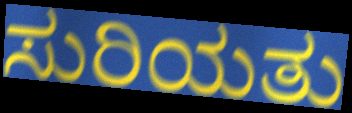
ಸುರಿಯತು